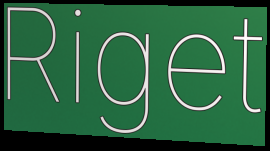
Riget